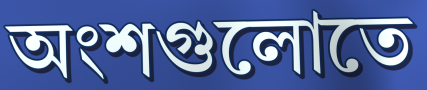
অংশগুলোতে